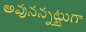
అవునన్నట్టుగా